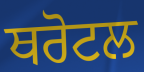
ਥਰੋਟਲ